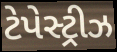
ટેપેસ્ટ્રીઝ